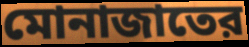
মোনাজাতের